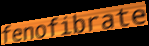
fenofibrate